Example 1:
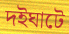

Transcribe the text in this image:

দইঘাটে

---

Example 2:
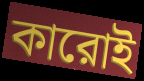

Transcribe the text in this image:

কারোই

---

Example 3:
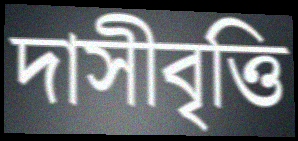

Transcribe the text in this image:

দাসীবৃত্তি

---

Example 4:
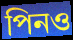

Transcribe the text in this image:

পিনও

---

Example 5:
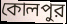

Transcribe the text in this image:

কোলপুর